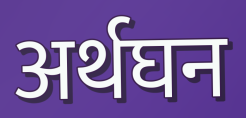
अर्थघन